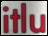
itlu